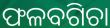
ଫଳବଗିଚା